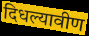
दिधल्यावीण